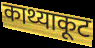
काथ्याकूट